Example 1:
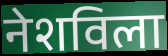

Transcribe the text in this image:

नेशविला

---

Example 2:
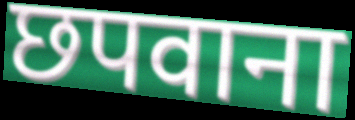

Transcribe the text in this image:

छपवाना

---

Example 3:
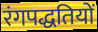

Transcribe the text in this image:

रंगपद्धतियों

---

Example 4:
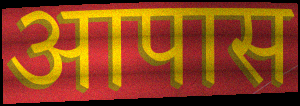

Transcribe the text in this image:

आपास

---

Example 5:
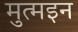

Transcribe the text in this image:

मुत्मइन